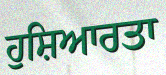
ਹੁਸ਼ਿਆਰਤਾ